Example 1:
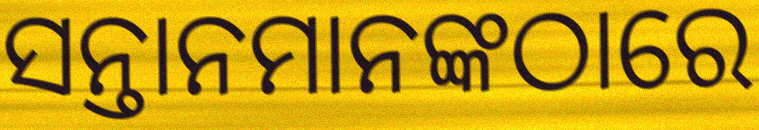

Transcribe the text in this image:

ସନ୍ତାନମାନଙ୍କଠାରେ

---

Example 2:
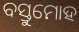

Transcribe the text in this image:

ବସ୍ତୁମୋହ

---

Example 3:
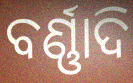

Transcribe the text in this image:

ବର୍ଣ୍ଣାଦି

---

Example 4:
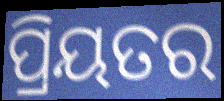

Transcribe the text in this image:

ପ୍ରିୟତର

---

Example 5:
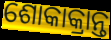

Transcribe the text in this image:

ଶୋକାକ୍ରାନ୍ତ